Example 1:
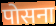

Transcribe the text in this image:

पोसना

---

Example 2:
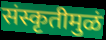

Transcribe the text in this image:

संस्कृतीमुळं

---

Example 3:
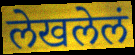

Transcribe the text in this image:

लेखलेलं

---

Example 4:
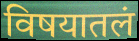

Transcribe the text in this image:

विषयातलं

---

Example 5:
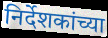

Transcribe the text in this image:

निर्देशकांच्या